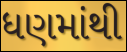
ધણમાંથી